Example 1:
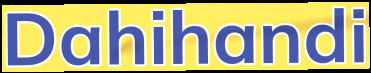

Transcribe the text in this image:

Dahihandi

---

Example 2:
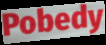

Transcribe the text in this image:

Pobedy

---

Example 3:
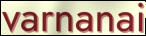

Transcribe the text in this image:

varnanai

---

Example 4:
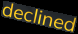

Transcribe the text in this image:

declined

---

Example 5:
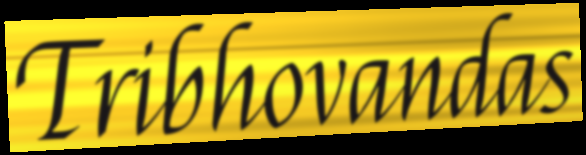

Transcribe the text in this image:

Tribhovandas